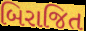
બિરાજિત